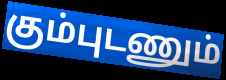
கும்புடணும்